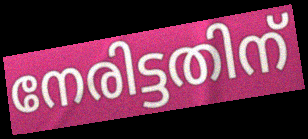
നേരിട്ടതിന്